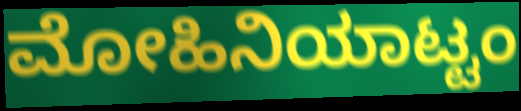
ಮೋಹಿನಿಯಾಟ್ಟಂ